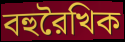
বহুরৈখিক